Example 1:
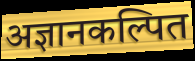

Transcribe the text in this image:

अज्ञानकल्पित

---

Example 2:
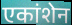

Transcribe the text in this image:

एकांशेन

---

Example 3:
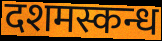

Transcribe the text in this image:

दशमस्कन्ध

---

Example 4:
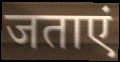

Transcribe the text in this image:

जताएं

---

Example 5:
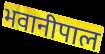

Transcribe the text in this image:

भवानीपाल